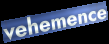
vehemence